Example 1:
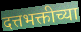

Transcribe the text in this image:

दत्तभक्तीच्या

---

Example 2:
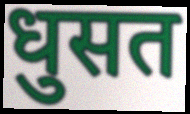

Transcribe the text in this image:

धुसत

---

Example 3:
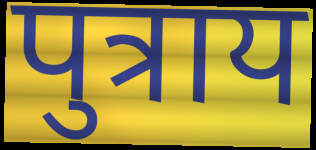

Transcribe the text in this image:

पुत्राय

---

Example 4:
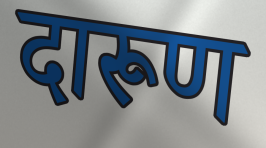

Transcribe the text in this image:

दारूण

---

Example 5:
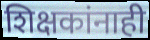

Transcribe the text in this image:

शिक्षकांनाही